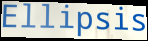
Ellipsis